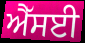
ਐੱਸਈ